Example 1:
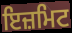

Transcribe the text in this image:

ਇਜ਼ਮਿਟ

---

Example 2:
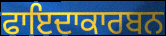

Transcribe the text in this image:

ਫਾਇਦਾਕਾਰਬਨ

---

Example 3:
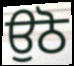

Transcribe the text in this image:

ਉਠੋ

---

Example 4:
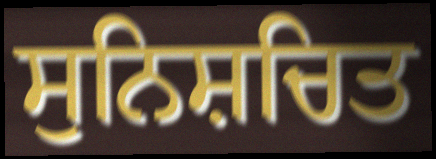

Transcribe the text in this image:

ਸੁਨਿਸ਼ਚਿਤ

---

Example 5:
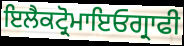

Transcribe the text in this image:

ਇਲੈਕਟ੍ਰੋਮਾਇਓਗ੍ਰਾਫੀ